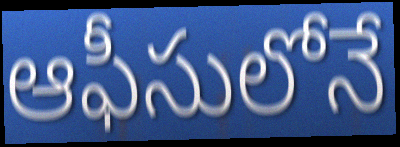
ఆఫీసులోనే